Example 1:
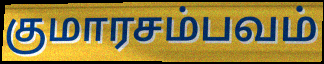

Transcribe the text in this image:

குமாரசம்பவம்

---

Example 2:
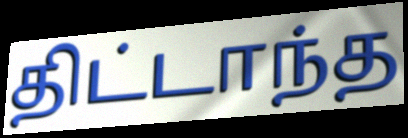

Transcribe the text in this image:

திட்டாந்த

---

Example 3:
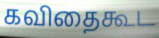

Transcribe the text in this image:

கவிதைகூட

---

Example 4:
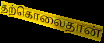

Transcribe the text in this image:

தற்கொலைதான்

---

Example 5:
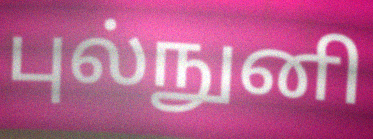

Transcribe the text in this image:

புல்நுனி